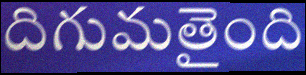
దిగుమతైంది